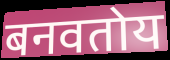
बनवतोय